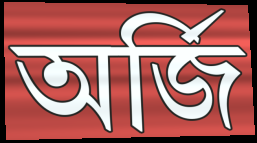
অর্জি